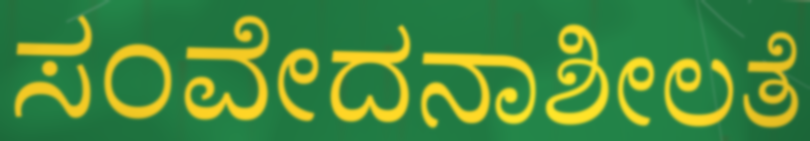
ಸಂವೇದನಾಶೀಲತೆ